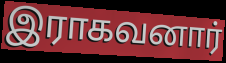
இராகவனார்